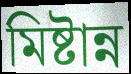
মিষ্টান্ন